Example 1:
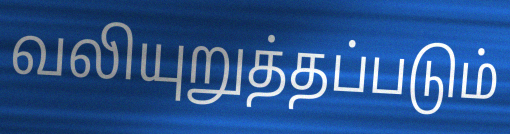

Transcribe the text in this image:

வலியுறுத்தப்படும்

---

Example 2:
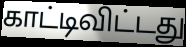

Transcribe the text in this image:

காட்டிவிட்டது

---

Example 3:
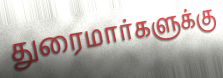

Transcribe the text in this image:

துரைமார்களுக்கு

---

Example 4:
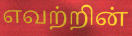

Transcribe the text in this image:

எவற்றின்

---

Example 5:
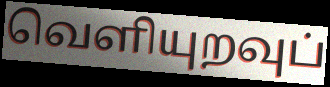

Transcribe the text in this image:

வெளியுறவுப்